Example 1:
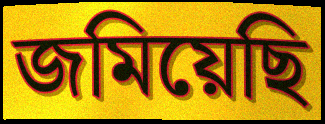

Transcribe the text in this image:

জমিয়েছি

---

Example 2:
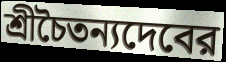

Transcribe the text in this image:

শ্রীচৈতন্যদেবের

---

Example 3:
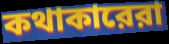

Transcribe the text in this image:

কথাকারেরা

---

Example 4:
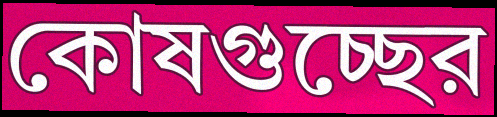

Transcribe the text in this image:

কোষগুচ্ছের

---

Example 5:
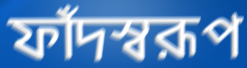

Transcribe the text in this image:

ফাঁদস্বরূপ